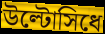
উল্টোসিধে